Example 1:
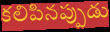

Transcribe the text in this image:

కలిపినప్పుడు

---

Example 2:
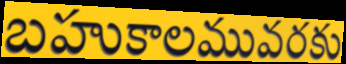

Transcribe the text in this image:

బహుకాలమువరకు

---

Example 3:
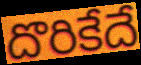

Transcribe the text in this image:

దొరికేదే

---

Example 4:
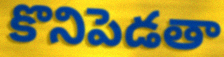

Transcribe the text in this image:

కొనిపెడతా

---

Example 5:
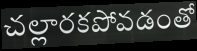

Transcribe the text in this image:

చల్లారకపోవడంతో